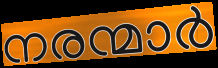
നരന്മാർ